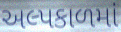
અલ્પકાળમાં